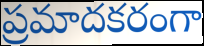
ప్రమాదకరంగా